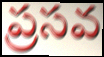
ప్రసవ